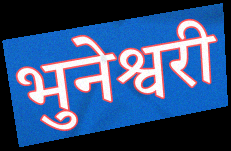
भुनेश्वरी